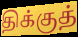
திக்குத்